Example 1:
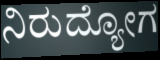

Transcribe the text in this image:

ನಿರುದ್ಯೋಗ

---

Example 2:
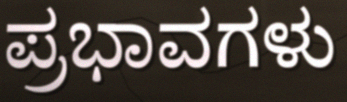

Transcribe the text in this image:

ಪ್ರಭಾವಗಳು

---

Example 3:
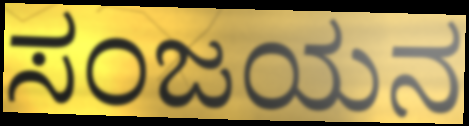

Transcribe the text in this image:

ಸಂಜಯನ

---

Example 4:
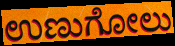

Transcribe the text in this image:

ಉಣುಗೋಲು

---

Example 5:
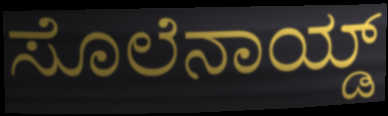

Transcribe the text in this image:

ಸೊಲೆನಾಯ್ಡ್